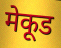
मेकूड